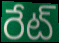
రేట్